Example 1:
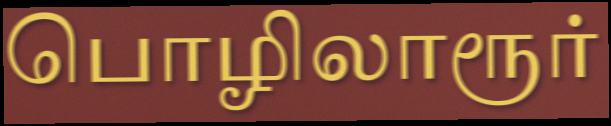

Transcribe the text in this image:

பொழிலாரூர்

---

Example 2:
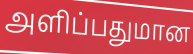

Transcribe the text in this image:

அளிப்பதுமான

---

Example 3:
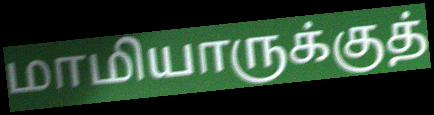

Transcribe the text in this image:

மாமியாருக்குத்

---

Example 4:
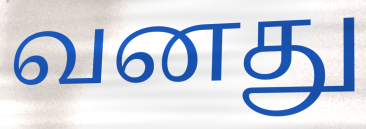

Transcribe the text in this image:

வனது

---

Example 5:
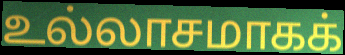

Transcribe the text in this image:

உல்லாசமாகக்